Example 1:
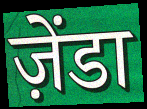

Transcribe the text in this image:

ज़ेंडा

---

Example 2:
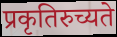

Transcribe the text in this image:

प्रकृतिरुच्यते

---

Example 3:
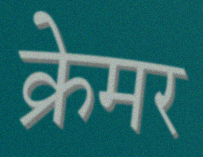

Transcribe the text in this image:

क्रेमर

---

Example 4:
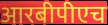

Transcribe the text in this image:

आरबीपीएच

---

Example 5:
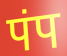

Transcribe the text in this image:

पंप